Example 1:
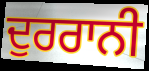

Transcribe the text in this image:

ਦੁਰਰਾਨੀ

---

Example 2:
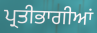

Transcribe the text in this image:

ਪ੍ਰਤੀਭਾਗੀਆਂ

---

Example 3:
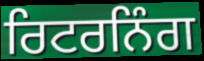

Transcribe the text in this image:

ਰਿਟਰਨਿੰਗ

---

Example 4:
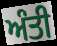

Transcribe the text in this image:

ਅੰਤੀ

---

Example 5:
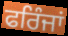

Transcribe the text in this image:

ਫਰਿੰਜਾਂ